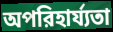
অপরিহার্য্যতা